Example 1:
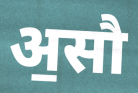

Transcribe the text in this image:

अ॒सौ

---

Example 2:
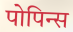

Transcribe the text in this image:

पोपिन्स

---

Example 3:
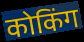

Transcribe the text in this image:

कोकिंग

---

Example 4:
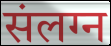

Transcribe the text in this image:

संलग्‍न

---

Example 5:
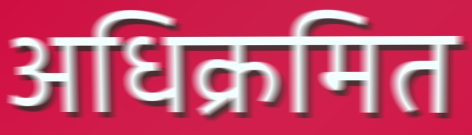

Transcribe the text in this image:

अधिक्रमित